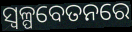
ସ୍ୱଳ୍ପବେତନରେ